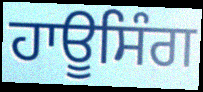
ਹਾਊਸਿੰਗ